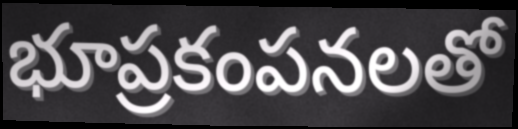
భూప్రకంపనలతో